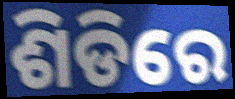
ଶିଡିରେ